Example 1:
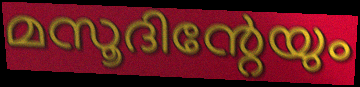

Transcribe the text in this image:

മസൂദിന്റേയും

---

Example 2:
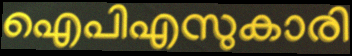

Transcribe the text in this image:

ഐപിഎസുകാരി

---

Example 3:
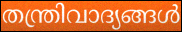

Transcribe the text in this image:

തന്ത്രിവാദ്യങ്ങൾ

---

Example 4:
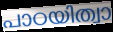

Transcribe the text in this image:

പാഠയിത്വാ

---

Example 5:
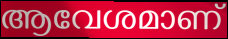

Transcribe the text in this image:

ആവേശമാണ്